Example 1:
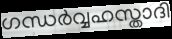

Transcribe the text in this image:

ഗന്ധർവ്വഹസ്താദി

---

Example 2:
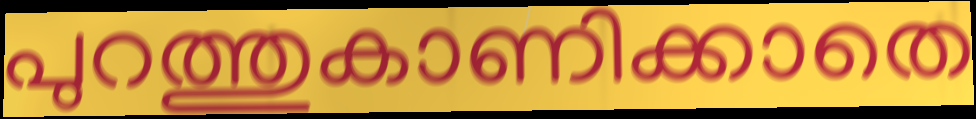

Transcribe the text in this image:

പുറത്തുകാണിക്കാതെ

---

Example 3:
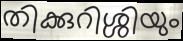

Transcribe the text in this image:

തിക്കുറിശ്ശിയും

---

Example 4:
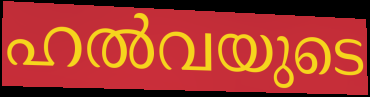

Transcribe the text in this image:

ഹൽവയുടെ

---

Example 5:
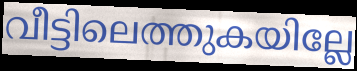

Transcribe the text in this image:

വീട്ടിലെത്തുകയില്ലേ